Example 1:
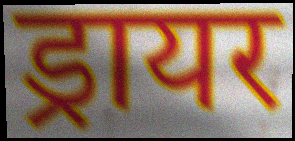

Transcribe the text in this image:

ड्रायर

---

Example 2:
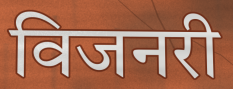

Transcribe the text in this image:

विजनरी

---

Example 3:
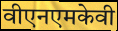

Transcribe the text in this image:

वीएनएमकेवी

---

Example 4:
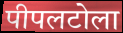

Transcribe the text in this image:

पीपलटोला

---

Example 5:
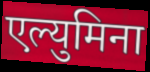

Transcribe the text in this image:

एल्युमिना